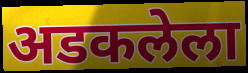
अडकलेला